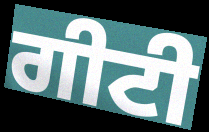
ਗੀਟੀ